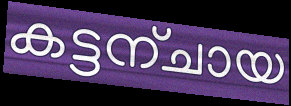
കട്ടന്ചായ